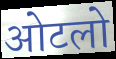
ओटलो